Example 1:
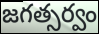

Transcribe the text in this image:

జగత్సర్వం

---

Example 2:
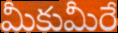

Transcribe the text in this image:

మీకుమీరే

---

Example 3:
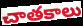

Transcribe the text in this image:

చాతకాలు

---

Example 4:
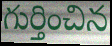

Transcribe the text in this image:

గుర్తించిన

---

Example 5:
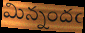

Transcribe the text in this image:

మిన్నందఁ